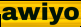
awiyo